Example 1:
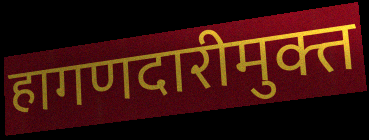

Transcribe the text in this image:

हागणदारीमुक्त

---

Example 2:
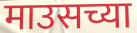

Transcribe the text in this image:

माउसच्या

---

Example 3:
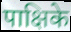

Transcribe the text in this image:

पाक्षिके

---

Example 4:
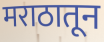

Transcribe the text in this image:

मराठातून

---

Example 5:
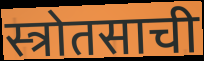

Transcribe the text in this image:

स्त्रोतसाची